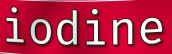
iodine